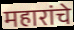
महारांचे